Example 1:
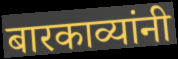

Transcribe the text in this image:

बारकाव्यांनी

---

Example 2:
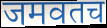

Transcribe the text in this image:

जमवतच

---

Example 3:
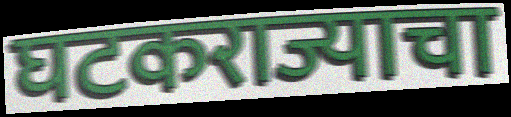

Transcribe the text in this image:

घटकराज्याचा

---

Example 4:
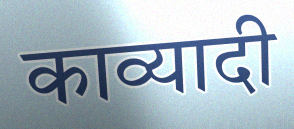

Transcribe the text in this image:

काव्यादी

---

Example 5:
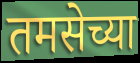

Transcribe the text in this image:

तमसेच्या